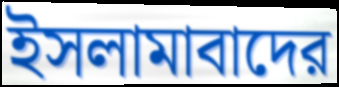
ইসলামাবাদের